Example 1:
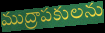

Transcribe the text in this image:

ముద్రాపకులను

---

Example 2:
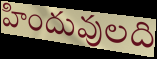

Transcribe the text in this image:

హిందువులది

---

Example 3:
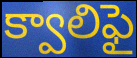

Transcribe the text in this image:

క్వాలిఫై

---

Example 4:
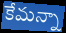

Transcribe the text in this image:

కేమన్నా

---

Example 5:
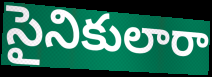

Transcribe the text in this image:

సైనికులారా